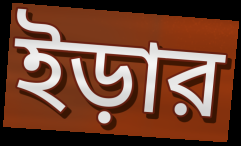
ইড়ার